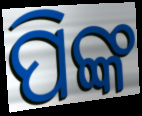
ପିଙ୍କ